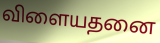
விளையதனை